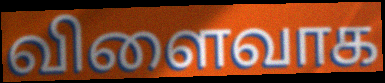
விளைவாக